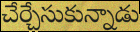
చేర్చేసుకున్నాడు